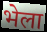
भेला